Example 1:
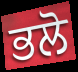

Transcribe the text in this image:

ਭਲੋ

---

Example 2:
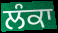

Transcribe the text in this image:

ਲੰਕਾ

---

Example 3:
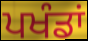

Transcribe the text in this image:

ਪਖੰਡਾਂ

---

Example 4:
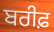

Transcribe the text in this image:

ਬਰੀਫ਼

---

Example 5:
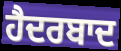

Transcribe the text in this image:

ਹੈਦਰਬਾਦ